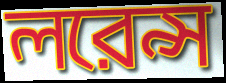
লরেন্স